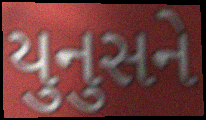
યુનુસને